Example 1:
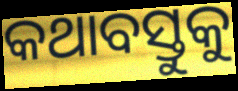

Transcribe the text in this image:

କଥାବସ୍ତୁକୁ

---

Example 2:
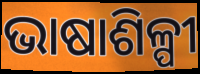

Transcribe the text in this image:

ଭାଷାଶିଳ୍ପୀ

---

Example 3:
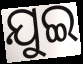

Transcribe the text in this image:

ଯୁଇ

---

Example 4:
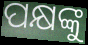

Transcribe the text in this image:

ପକ୍ଷଙ୍କୁ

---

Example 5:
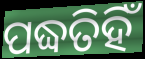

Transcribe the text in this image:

ପଦ୍ଧତିହିଁ